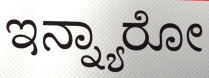
ಇನ್ನ್ಯಾರೋ